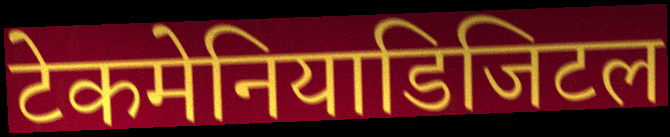
टेकमेनियाडिजिटल